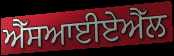
ਐੱਸਆਈਏਐੱਲ